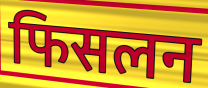
फिसलन